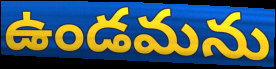
ఉండమను